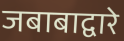
जबाबाद्वारे